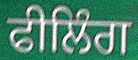
ਫੀਲਿੰਗ